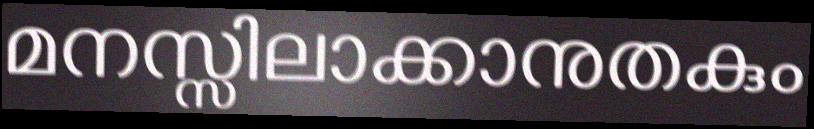
മനസ്സിലാക്കാനുതകും